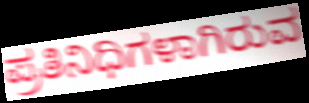
ಪ್ರತಿನಿಧಿಗಳಾಗಿರುವ